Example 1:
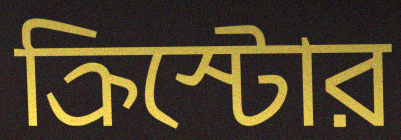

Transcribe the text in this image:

ক্রিস্টোর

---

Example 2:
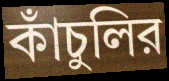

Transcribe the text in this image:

কাঁচুলির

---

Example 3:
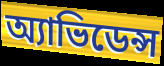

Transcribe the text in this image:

অ্যাভিডেন্স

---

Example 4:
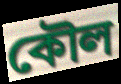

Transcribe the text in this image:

কৌল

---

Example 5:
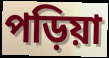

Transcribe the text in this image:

পড়িয়া